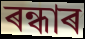
ৰন্ধাৰ